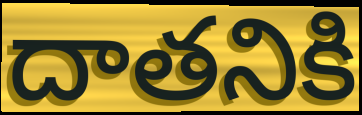
దాతనికి